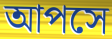
আপসে